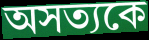
অসত্যকে